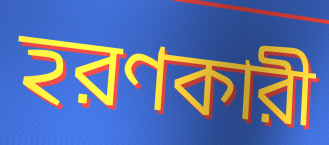
হরণকারী